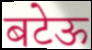
बटेऊ